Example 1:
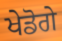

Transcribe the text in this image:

ਖੇਡੋਗੇ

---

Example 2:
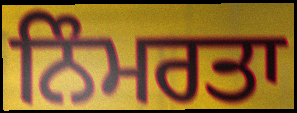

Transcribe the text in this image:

ਨਿੰਮਰਤਾ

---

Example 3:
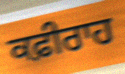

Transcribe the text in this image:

ਕਫ਼ੀਰਾਹ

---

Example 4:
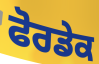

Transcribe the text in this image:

ਫੋਰਡੇਕ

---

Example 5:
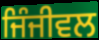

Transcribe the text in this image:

ਜਿੰਜੀਵਲ